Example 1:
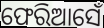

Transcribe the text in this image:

ଫେରିଆସେଁ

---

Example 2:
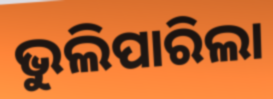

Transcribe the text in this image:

ଭୁଲିପାରିଲା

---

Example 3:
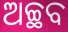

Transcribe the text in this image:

ଅଚ୍ଛବ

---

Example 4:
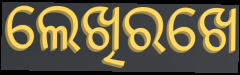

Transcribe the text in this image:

ଲେଖିରଖେ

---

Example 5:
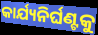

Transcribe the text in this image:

କାର୍ଯ୍ୟନିର୍ଘଣ୍ଟକୁ